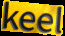
keel